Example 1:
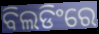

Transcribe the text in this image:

ବିଲଡିଂରେ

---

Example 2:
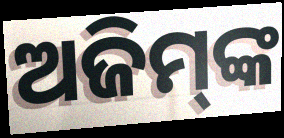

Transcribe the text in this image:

ଅଜିମ୍‌ଙ୍କ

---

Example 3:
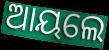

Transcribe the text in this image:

ଆୟଲେ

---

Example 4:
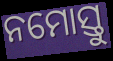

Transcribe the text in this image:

ନମୋସ୍ତୁ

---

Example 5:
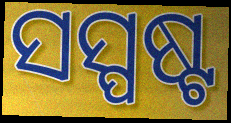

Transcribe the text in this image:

ସସ୍ପଷ୍ଟ